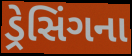
ડ્રેસિંગના